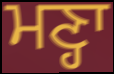
ਮਣ੍ਹਾ